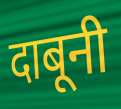
दाबूनी